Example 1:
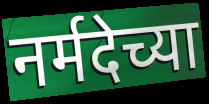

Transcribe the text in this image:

नर्मदेच्या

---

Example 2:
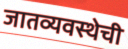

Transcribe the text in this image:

जातव्यवस्थेची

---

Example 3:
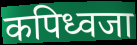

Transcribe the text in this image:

कपिध्वजा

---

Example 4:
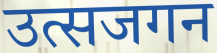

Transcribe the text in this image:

उत्सजगन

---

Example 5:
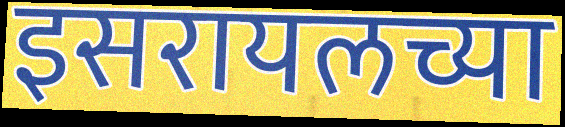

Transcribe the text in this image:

इसरायलच्या